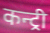
कन्ट्री